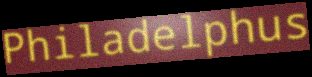
Philadelphus